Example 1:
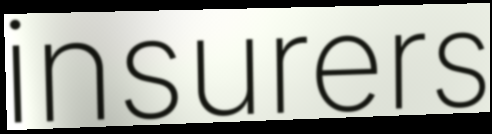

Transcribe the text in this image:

insurers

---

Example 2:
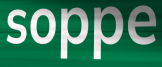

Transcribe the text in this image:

soppe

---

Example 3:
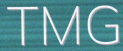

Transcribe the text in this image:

TMG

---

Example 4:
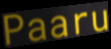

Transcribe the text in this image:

Paaru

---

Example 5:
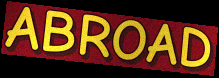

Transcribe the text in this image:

ABROAD